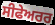
ਸੀਫੇਅਰਰ